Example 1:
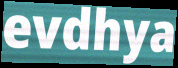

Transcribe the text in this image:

evdhya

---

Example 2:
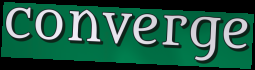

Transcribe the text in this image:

converge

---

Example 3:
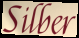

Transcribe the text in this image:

Silber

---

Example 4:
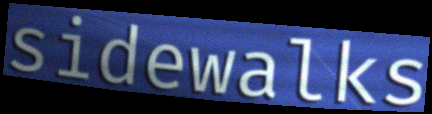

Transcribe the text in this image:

sidewalks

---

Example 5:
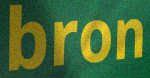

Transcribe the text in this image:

bron